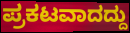
ಪ್ರಕಟವಾದದ್ದು